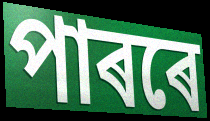
পাৰৰে